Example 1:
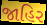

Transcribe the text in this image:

જાહિર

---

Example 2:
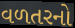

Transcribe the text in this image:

વળતરનો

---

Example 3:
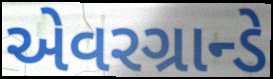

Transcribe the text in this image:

એવરગ્રાન્ડે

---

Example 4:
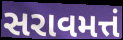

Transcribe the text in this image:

સરાવમત્તં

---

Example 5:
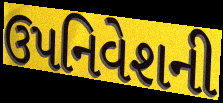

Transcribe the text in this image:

ઉપનિવેશની